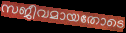
സജീവമായതോടെ